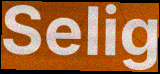
Selig